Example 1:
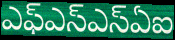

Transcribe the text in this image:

ఎఫ్ఎస్ఎస్ఏఐ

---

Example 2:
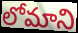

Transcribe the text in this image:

లోమాని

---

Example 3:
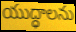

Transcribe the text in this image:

యుద్ధాలను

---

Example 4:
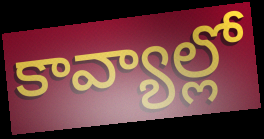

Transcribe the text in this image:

కావ్యాల్లో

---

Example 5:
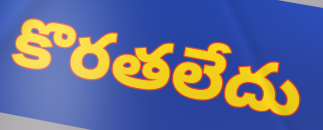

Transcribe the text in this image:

కొరతలేదు